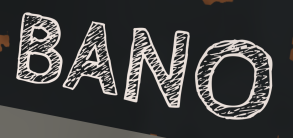
BANO